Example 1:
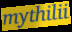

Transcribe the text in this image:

mythilii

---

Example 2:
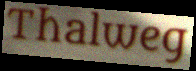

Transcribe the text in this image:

Thalweg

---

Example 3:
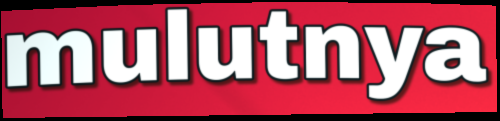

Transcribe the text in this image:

mulutnya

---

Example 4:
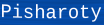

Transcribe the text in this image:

Pisharoty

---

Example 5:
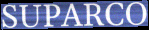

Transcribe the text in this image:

SUPARCO